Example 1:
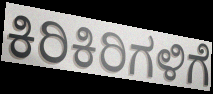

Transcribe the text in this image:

ಕಿರಿಕಿರಿಗಳಿಗೆ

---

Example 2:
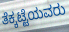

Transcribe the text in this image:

ತೆಕ್ಕಟ್ಟೆಯವರು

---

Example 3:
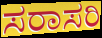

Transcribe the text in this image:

ಸರಾಸರಿ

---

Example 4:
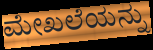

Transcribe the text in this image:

ಮೇಖಲೆಯನ್ನು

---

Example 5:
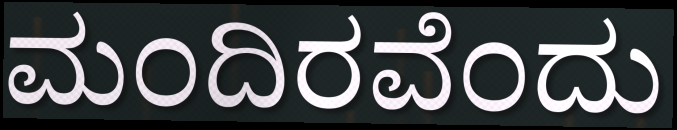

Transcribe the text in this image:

ಮಂದಿರವೆಂದು